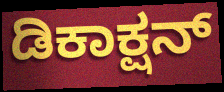
ಡಿಕಾಕ್ಷನ್